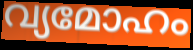
വ്യമോഹം